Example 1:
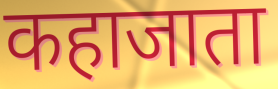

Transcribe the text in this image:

कहाजाता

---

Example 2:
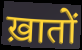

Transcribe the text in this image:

ख़ातों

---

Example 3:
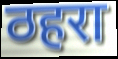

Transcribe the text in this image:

ठहरा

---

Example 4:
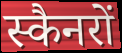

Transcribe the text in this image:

स्कैनरों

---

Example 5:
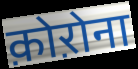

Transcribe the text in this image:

क़ोऱोना